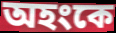
অহংকে